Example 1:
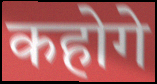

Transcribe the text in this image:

कहोगे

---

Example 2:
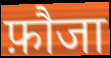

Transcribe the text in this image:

फ़ौजा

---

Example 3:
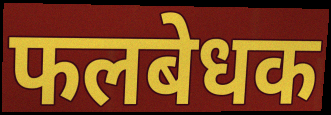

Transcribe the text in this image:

फलबेधक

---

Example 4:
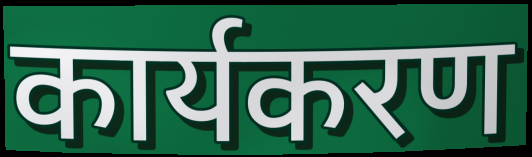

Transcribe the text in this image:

कार्यकरण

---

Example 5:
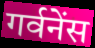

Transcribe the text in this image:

गर्वनेंस